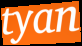
tyan